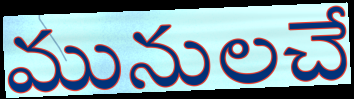
మునులచే